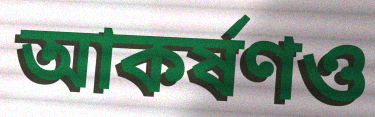
আকর্ষণও